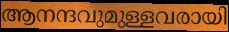
ആനന്ദവുമുള്ളവരായി